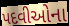
પદવીઓના